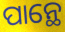
ପାନ୍ଥେ